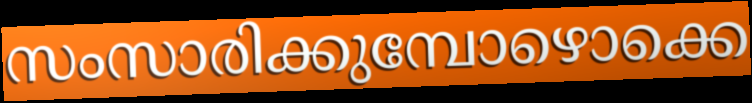
സംസാരിക്കുമ്പോഴൊക്കെ